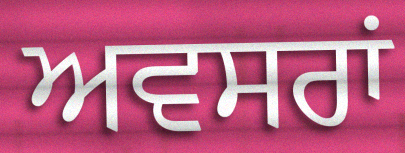
ਅਵਸਰਾਂ